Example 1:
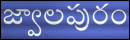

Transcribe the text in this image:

జ్వాలపురం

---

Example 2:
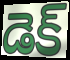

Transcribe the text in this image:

డెక్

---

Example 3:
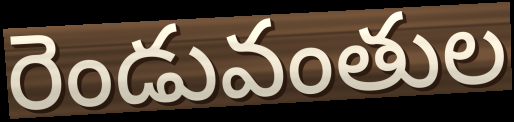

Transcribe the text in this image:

రెండువంతుల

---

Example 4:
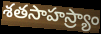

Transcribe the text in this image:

శతసాహస్ర్యాం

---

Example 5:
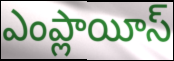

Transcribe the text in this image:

ఎంప్లాయీస్